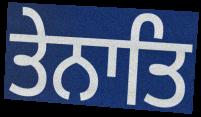
ਤੇਨਾਤਿ